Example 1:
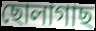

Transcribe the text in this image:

ছোলাগাছ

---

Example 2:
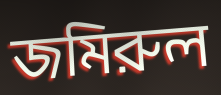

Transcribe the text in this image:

জমিরুল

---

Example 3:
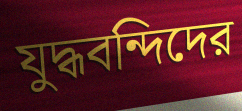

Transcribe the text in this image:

যুদ্ধবন্দিদের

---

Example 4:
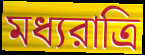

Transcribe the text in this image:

মধ্যরাত্রি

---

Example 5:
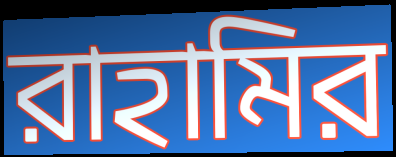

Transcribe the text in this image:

রাহামির